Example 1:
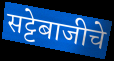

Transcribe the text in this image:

सट्टेबाजीचे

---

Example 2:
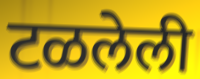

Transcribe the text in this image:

टळलेली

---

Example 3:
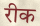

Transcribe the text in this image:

रीक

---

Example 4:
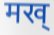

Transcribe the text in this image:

मख्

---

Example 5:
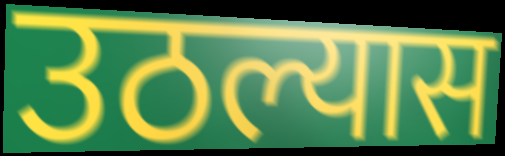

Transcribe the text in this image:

उठल्यास